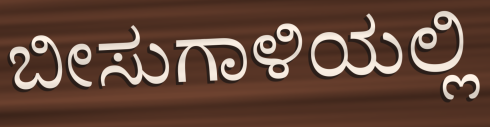
ಬೀಸುಗಾಳಿಯಲ್ಲಿ